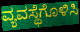
ವ್ಯವಸ್ಥೆಗೊಳಿಸಿ